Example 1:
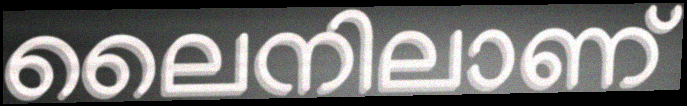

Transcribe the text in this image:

ലൈനിലാണ്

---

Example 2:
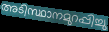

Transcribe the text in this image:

അടിസ്ഥാനമുറപ്പിച്ചു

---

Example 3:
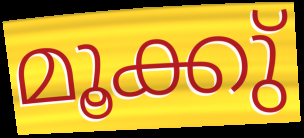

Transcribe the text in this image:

മൂക്കു്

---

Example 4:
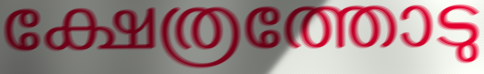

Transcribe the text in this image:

ക്ഷേത്രത്തോടു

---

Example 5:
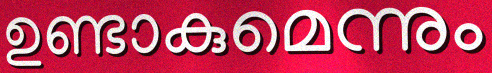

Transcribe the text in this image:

ഉണ്ടാകുമെന്നും